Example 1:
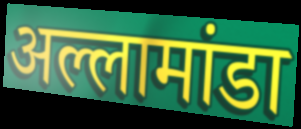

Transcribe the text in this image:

अल्लामांडा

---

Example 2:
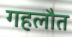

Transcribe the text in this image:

गहलौत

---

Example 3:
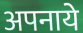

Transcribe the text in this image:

अपनाये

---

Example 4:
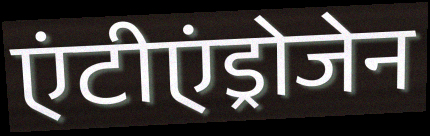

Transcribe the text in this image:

एंटीएंड्रोजेन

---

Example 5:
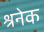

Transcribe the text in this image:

श्रनेक